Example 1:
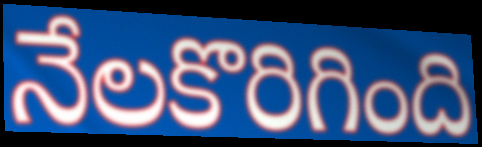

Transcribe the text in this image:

నేలకొరిగింది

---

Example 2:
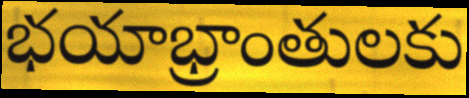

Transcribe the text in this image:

భయాభ్రాంతులకు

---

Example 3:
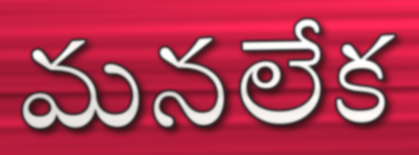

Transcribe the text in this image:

మనలేక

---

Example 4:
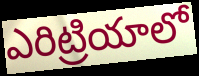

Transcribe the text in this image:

ఎరిట్రియాలో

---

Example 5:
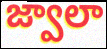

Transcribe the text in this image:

జ్వాలా